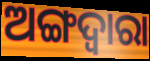
ଅଙ୍ଗଦ୍ଵାରା